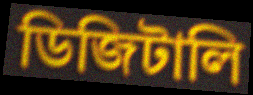
ডিজিটালি